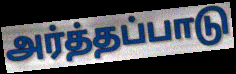
அர்த்தப்பாடு